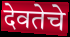
देवतेचे